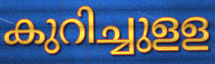
കുറിച്ചുളള